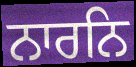
ਨਾਰਨਿ